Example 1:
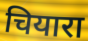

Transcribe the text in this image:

चियारा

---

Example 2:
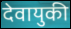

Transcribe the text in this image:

देवायुकी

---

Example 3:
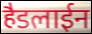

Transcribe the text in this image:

हैडलाईन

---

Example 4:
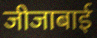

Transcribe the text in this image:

जीजाबाई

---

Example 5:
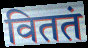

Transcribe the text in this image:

विततं